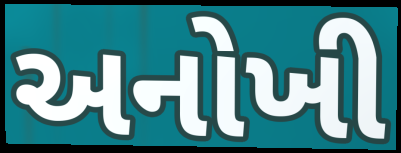
અનોખી